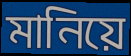
মানিয়ে